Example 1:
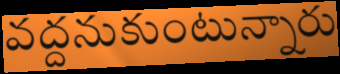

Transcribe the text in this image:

వద్దనుకుంటున్నారు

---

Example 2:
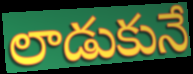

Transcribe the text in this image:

లాడుకునే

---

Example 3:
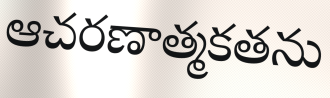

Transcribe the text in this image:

ఆచరణాత్మకతను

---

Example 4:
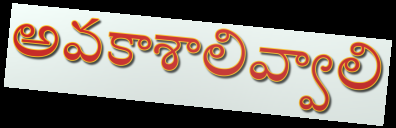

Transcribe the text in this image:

అవకాశాలివ్వాలి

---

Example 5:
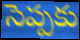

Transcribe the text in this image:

సెప్పకు